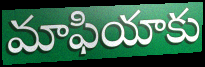
మాఫియాకు